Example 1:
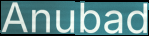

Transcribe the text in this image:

Anubad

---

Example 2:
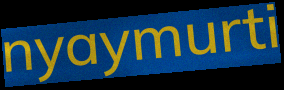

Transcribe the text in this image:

nyaymurti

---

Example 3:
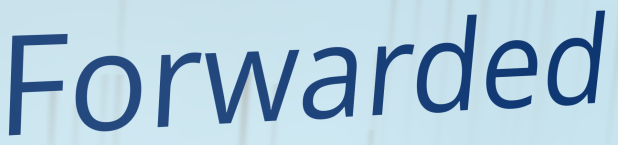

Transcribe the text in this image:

Forwarded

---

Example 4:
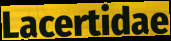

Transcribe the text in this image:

Lacertidae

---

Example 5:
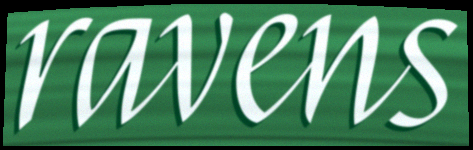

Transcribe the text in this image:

ravens